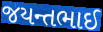
જયન્તભાઈ